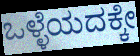
ಒಳ್ಳೆಯದಕ್ಕೇ